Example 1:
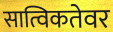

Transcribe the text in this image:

सात्विकतेवर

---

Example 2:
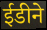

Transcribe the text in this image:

ईडीने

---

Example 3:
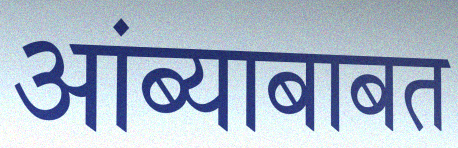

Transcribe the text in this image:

आंब्याबाबत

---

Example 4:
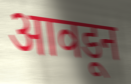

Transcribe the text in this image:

आवडून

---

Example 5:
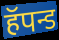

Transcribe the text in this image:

हॅपन्ड